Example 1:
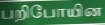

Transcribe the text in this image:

பறிபோயின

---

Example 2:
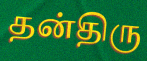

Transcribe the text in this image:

தன்திரு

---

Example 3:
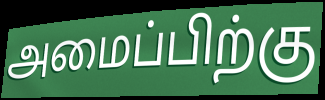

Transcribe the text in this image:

அமைப்பிற்கு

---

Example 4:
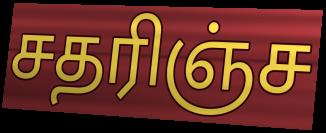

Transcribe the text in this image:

சதரிஞ்ச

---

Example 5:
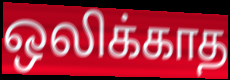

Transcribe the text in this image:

ஒலிக்காத